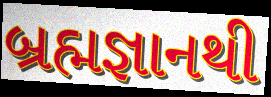
બ્રહ્મજ્ઞાનથી